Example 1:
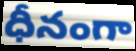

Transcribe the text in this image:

ధీనంగా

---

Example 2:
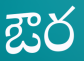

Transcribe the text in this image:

ఔర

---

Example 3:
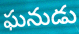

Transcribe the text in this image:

ఘనుడు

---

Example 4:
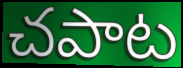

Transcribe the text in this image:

చపాట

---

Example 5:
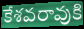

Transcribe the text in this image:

కేశవరావుకి